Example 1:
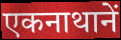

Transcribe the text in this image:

एकनाथानें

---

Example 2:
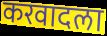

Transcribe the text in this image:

करवादला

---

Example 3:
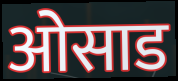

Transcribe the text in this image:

ओसाड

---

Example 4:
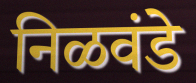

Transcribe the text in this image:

निळवंडे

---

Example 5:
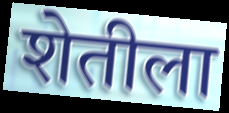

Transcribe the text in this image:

शेतीला